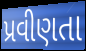
પ્રવીણતા